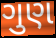
ગુણ